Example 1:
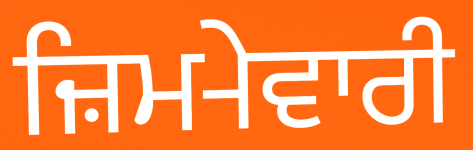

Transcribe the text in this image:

ਜ਼ਿਮ੍ਮੇਵਾਰੀ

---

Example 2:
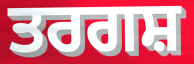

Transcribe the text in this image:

ਤਰਗਸ਼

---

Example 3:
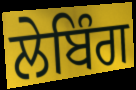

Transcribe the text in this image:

ਲੇਬਿੰਗ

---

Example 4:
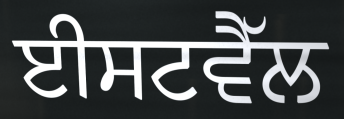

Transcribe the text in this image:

ਈਸਟਵੈੱਲ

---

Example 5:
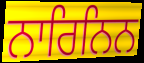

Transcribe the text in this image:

ਨਾਰਿਨਿਨ